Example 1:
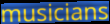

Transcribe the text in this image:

musicians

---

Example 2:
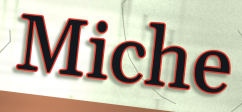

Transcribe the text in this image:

Miche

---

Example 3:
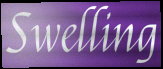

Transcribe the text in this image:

Swelling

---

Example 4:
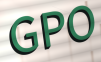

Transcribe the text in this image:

GPO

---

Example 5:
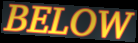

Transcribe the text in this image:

BELOW